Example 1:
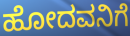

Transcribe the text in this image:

ಹೋದವನಿಗೆ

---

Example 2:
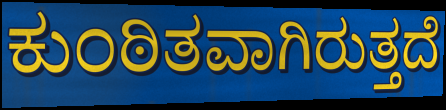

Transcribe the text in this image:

ಕುಂಠಿತವಾಗಿರುತ್ತದೆ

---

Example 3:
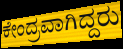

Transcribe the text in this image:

ಕೇಂದ್ರವಾಗಿದ್ದರು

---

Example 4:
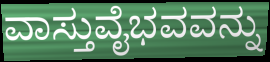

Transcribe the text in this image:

ವಾಸ್ತುವೈಭವವನ್ನು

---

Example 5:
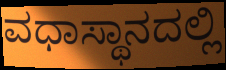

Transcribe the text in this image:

ವಧಾಸ್ಥಾನದಲ್ಲಿ